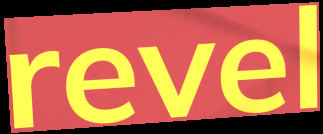
revel